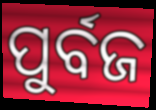
ପୁର୍ବଜ